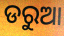
ଡରୁଆ